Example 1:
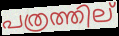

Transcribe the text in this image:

പത്രത്തില്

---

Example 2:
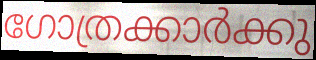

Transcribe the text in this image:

ഗോത്രക്കാർക്കു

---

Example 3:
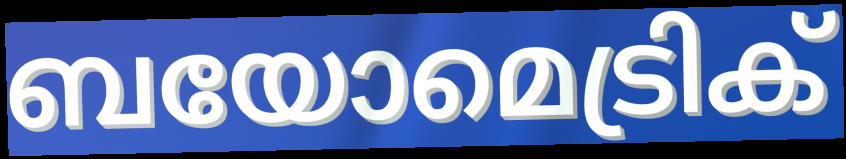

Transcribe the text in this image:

ബയോമെട്രിക്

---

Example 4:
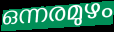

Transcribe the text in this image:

ഒന്നരമുഴം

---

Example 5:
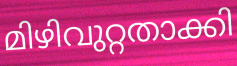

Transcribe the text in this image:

മിഴിവുറ്റതാക്കി